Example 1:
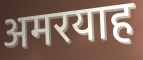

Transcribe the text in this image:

अमरयाह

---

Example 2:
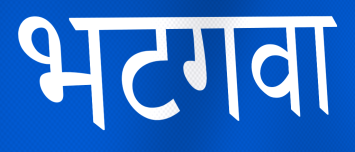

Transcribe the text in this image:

भटगवा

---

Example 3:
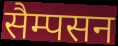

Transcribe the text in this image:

सैम्पसन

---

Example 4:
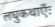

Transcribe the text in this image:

लघुकथाएँः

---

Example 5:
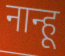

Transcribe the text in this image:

नान्हू